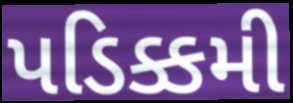
પડિક્કમી